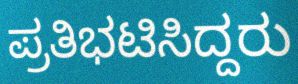
ಪ್ರತಿಭಟಿಸಿದ್ದರು